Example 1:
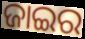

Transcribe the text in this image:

ଜାଇର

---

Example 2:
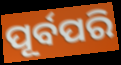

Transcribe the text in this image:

ପୂର୍ବପରି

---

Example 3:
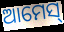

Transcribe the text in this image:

ଆମେସ୍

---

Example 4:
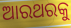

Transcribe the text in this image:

ଆରଥରକୁ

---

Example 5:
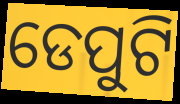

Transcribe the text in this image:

ଡେପୁଟି